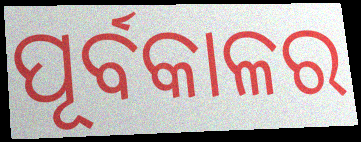
ପୂର୍ବକାଳର